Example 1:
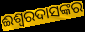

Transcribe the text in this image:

ଈଶ୍ଵରଦାସଙ୍କର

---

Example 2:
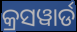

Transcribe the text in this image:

କ୍ରସୱାର୍ଡ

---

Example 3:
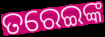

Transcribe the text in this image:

ତରେଇଙ୍କ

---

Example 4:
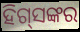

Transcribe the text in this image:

ହିଗ୍‌ସଙ୍କର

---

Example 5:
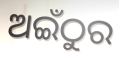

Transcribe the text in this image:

ଅଇଁଠୁର